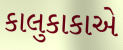
કાલુકાકાએ